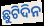
ଛୁଟିଦିନ